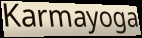
Karmayoga